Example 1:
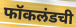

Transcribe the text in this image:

फॉकलंडची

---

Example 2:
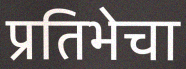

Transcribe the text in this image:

प्रतिभेचा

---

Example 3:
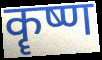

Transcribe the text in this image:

कॄष्ण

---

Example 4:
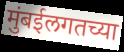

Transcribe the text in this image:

मुंबईलगतच्या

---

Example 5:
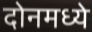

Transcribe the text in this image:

दोनमध्ये